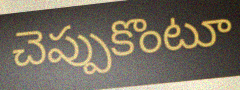
చెప్పుకొంటూ